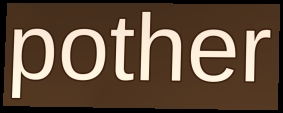
pother